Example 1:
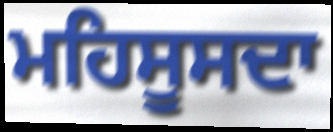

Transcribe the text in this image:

ਮਹਿਸੂਸਦਾ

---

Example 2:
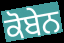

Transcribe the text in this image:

ਕੋਬੇਨ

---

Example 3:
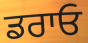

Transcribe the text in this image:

ਡਰਾਓ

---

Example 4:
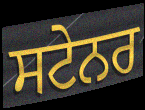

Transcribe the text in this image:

ਸਟੇਨਰ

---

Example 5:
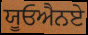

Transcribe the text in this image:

ਯੂਓਐਨਏ